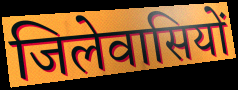
जिलेवासियों